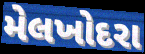
મેલખોદરા